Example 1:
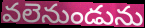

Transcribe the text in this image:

వలెనుండును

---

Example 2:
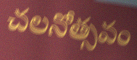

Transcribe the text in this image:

చలనోత్సవం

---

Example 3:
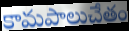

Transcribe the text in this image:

కామపాలుచేతం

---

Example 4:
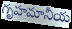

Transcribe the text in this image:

గృహమానీయ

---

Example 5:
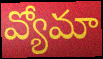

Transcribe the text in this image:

వ్యోమా